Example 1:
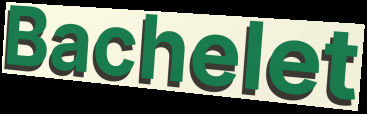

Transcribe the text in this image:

Bachelet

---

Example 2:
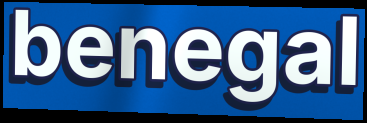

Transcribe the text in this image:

benegal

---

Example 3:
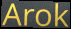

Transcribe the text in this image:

Arok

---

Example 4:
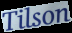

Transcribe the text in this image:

Tilson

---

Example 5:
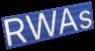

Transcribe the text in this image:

RWAs